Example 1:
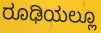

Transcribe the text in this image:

ರೂಢಿಯಲ್ಲೂ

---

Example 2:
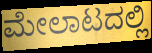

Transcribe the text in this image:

ಮೇಲಾಟದಲ್ಲಿ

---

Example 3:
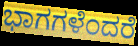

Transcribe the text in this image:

ಭಾಗಗಳೆಂದರೆ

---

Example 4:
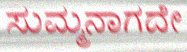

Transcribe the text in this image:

ಸುಮ್ಮನಾಗದೇ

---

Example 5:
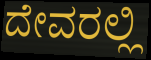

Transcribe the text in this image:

ದೇವರಲ್ಲಿ